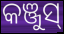
କଞ୍ଜୁସ୍